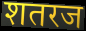
शतरज